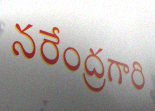
నరేంద్రగారి